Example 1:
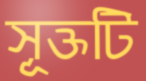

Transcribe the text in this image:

সূক্তটি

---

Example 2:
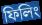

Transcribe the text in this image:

ফিলিং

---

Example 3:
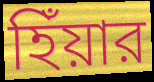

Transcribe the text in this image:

হিঁয়ার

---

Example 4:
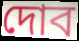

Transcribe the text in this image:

দোব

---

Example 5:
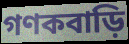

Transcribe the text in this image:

গণকবাড়ি